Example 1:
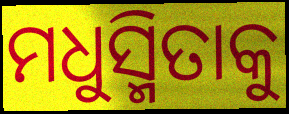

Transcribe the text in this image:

ମଧୁସ୍ମିତାକୁ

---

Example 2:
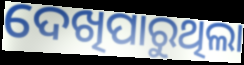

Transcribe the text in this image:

ଦେଖିପାରୁଥିଲା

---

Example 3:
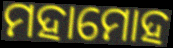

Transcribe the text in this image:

ମହାମୋହ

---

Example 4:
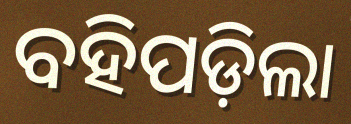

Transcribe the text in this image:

ବହିପଡ଼ିଲା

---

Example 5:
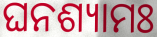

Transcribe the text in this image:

ଘନଶ୍ଯାମଃ